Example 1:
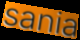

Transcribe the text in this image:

sania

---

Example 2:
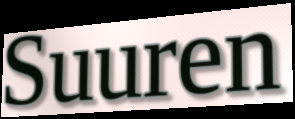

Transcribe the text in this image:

Suuren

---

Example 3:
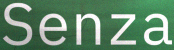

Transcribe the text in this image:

Senza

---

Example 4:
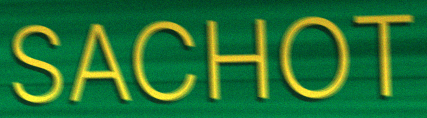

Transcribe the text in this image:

SACHOT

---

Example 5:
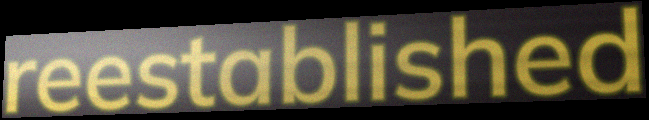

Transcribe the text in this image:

reestablished